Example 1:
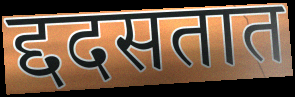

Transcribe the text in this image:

द्ददसतात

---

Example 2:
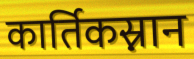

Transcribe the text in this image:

कार्तिकस्नान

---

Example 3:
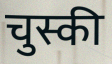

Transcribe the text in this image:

चुस्की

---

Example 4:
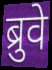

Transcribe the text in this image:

ब्रुवे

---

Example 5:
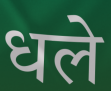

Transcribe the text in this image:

धले